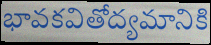
భావకవితోద్యమానికి